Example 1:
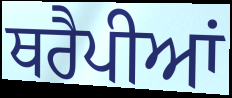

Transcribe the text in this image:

ਥਰੈਪੀਆਂ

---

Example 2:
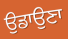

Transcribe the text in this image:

ਉਡਾਉਣਾ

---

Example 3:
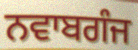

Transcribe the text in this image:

ਨਵਾਬਗੰਜ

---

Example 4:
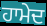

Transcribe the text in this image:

ਹਾਮੇਦ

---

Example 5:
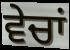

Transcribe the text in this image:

ਵੇਚਾਂ